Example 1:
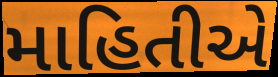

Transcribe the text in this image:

માહિતીએ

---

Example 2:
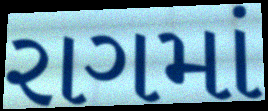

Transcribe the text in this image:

રાગમાં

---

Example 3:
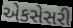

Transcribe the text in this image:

એકસેસરી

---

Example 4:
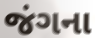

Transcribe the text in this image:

જંગના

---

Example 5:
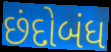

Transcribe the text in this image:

છંદોબંધ